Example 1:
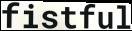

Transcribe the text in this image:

fistful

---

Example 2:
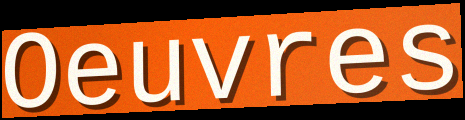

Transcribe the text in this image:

Oeuvres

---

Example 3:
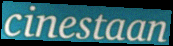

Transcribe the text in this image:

cinestaan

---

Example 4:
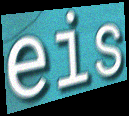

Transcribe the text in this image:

eis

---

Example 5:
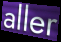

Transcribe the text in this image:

aller